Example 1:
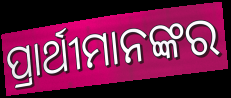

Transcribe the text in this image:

ପ୍ରାର୍ଥୀମାନଙ୍କର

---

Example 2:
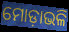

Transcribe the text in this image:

ମୋଡ଼ାଭଳି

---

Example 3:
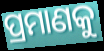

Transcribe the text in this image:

ପ୍ରମାଣକୁ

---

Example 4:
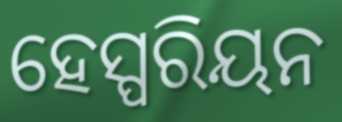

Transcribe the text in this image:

ହେସ୍ପରିୟନ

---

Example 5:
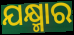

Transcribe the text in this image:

ଯକ୍ଷ୍ମାର